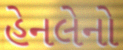
હેનલેનો